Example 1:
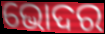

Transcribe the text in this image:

ଭୋଦର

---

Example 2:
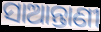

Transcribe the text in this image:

ସାଆନ୍ତାଣୀ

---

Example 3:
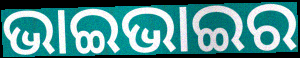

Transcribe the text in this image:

ଭାଇଭାଇର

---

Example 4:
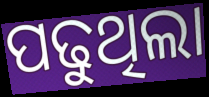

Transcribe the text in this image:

ପଢୁଥିଲା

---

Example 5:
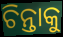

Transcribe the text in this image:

ଚିନ୍ତାକୁ